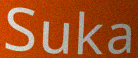
Suka